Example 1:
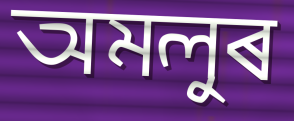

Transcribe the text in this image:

অমলুৰ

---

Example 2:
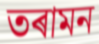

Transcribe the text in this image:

তৰামন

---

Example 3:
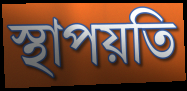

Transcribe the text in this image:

স্থাপয়তি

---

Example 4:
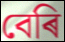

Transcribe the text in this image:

বেৰি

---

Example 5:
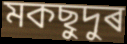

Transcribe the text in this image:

মকছুদুৰ